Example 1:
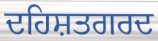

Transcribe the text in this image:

ਦਹਿਸ਼ਤਗਰਦ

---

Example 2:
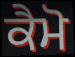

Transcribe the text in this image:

ਕੈਮੋ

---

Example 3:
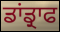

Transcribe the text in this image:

ਡਾਂਡ੍ਰਾਫ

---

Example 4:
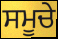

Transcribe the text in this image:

ਸਮੂਚੇ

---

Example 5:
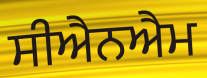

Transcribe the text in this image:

ਸੀਐਨਐਮ